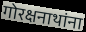
गोरक्षनाथांना